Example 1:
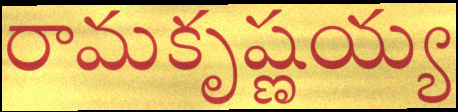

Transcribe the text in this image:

రామకృష్ణయ్య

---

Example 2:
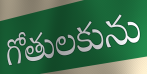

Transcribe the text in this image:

గోతులకును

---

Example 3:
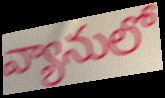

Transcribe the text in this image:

వ్యానులో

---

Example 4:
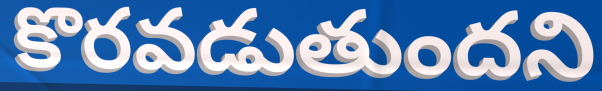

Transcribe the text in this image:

కొరవడుతుందని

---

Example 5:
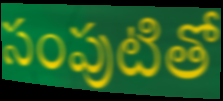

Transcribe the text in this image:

సంపుటితో